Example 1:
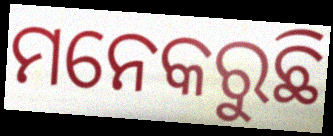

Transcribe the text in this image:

ମନେକରୁଛି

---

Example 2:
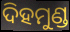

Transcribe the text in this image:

ଦିହମୁଣ୍ଡ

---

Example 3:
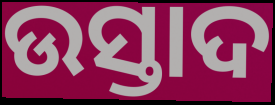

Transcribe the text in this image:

ଉସ୍ତାଦ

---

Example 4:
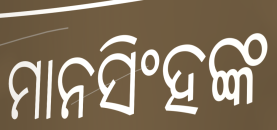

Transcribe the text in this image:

ମାନସିଂହଙ୍କ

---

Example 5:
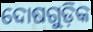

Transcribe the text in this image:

ଦୋଷଗୁଡ଼ିକ